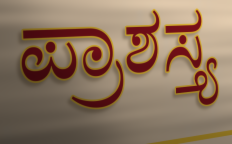
ಪ್ರಾಶಸ್ತ್ಯ